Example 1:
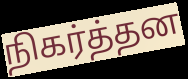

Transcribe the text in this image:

நிகர்த்தன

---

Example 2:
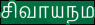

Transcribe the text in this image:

சிவாயநம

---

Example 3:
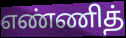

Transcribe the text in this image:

எண்ணித்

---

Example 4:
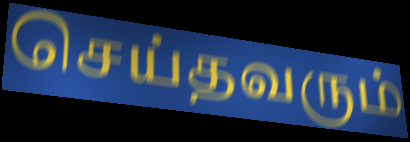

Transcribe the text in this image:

செய்தவரும்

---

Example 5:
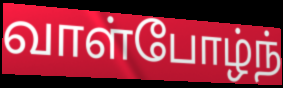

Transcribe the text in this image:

வாள்போழ்ந்